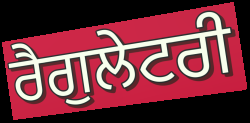
ਰੈਗੁਲੇਟਰੀ